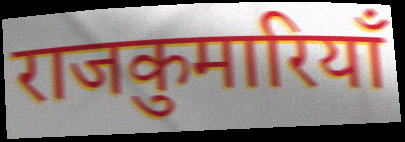
राजकुमारियाँ